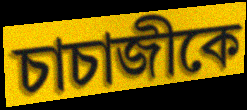
চাচাজীকে